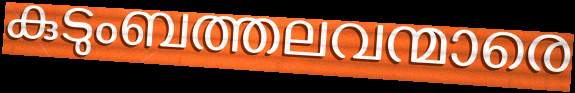
കുടുംബത്തലവന്മാരെ